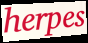
herpes